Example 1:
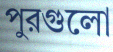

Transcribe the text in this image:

পুরগুলো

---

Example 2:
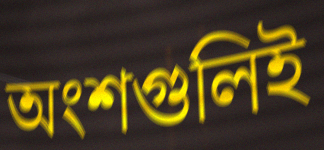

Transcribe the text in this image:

অংশগুলিই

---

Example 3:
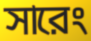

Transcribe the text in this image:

সারেং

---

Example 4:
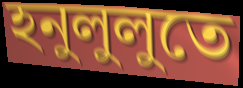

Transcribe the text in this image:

হনুলুলুতে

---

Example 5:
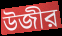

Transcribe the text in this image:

উজীর